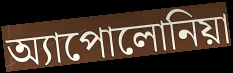
অ্যাপোলোনিয়া